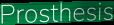
Prosthesis